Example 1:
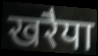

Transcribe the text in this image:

खरैया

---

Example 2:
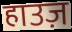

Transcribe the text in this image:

हाउज़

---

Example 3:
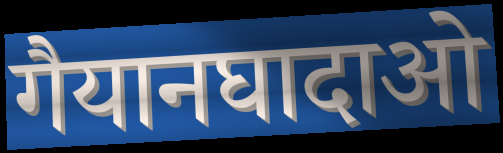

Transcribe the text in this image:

गैयानघादाओ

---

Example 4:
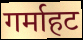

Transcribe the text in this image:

गर्माहट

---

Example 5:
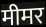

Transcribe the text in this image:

मीमर